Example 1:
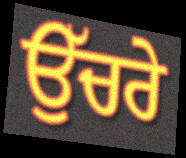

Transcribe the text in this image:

ਉੱਚਰੇ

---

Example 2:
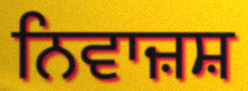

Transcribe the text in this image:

ਨਿਵਾਜ਼ਸ਼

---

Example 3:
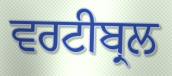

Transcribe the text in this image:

ਵਰਟੀਬ੍ਰਲ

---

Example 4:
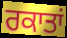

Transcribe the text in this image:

ਰਕਾਤਾਂ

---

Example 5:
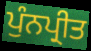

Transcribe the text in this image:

ਪੁੰਨਪ੍ਰੀਤ